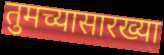
तुमच्यासारख्या